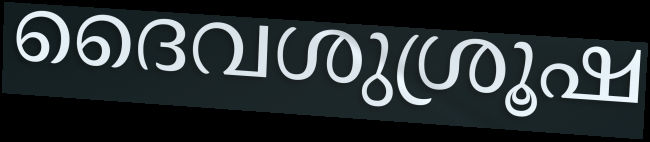
ദൈവശുശ്രൂഷ